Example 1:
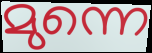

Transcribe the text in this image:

മുന്നെ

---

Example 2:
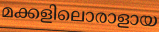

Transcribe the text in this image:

മക്കളിലൊരാളായ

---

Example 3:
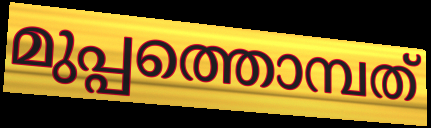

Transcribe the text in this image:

മുപ്പത്തൊമ്പത്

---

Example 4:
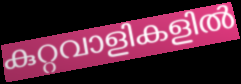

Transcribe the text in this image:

കുറ്റവാളികളിൽ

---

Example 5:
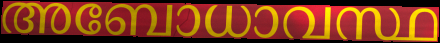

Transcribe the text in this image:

അബോധാവസ്ഥ